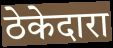
ठेकेदारा